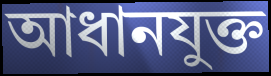
আধানযুক্ত